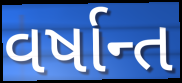
વર્ષાન્ત